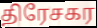
திரேசகர